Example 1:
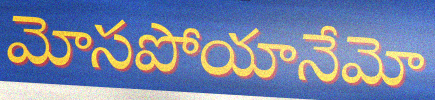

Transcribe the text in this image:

మోసపోయానేమో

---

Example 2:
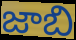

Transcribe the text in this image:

జాబి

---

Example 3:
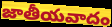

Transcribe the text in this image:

జాతీయవాదం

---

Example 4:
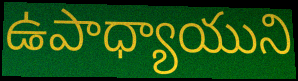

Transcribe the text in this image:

ఉపాధ్యాయుని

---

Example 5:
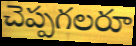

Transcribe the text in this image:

చెప్పగలరూ